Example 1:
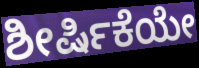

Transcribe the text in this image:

ಶೀರ್ಷಿಕೆಯೇ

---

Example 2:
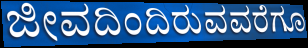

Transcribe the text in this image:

ಜೀವದಿಂದಿರುವವರೆಗೂ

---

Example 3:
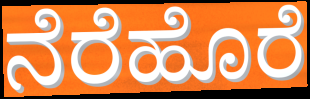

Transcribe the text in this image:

ನೆರೆಹೊರೆ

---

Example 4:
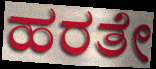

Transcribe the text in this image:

ಹರತೇ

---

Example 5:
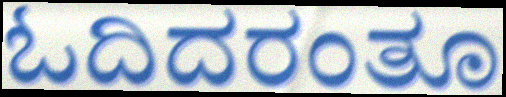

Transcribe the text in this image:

ಓದಿದರಂತೂ